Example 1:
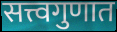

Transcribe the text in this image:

सत्त्वगुणात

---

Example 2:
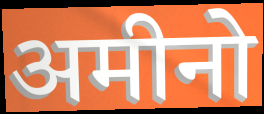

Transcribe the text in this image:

अमीनो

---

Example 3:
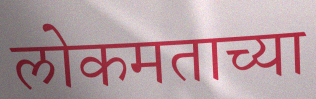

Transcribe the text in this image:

लोकमताच्या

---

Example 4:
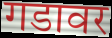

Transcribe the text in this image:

गडावर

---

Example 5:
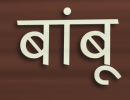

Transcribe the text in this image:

बांबू